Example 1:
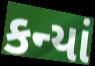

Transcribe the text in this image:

કન્યાં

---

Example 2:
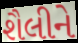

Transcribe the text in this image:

શૈલીને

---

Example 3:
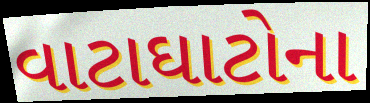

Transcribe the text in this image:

વાટાઘાટોના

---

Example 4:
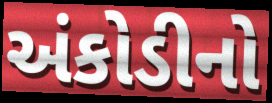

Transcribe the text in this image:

અંકોડીનો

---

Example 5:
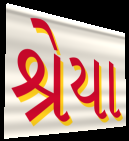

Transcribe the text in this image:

શ્રેયા